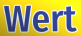
Wert